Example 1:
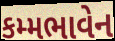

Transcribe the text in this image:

કમ્મભાવેન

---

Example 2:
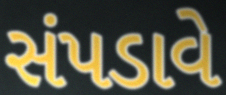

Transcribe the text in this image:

સંપડાવે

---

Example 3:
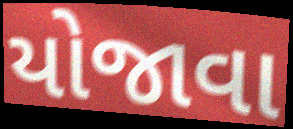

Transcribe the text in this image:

યોજાવા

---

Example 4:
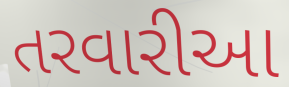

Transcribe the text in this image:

તરવારીઆ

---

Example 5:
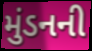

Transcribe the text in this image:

મુંડનની